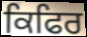
ਕਿਫਿਰ